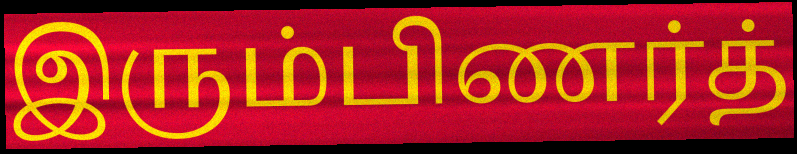
இரும்பிணர்த்